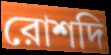
রোশদি